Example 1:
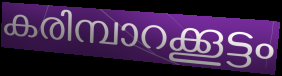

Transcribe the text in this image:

കരിമ്പാറക്കൂട്ടം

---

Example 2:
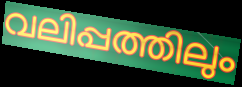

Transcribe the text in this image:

വലിപ്പത്തിലും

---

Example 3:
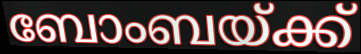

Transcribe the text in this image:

ബോംബയ്ക്ക്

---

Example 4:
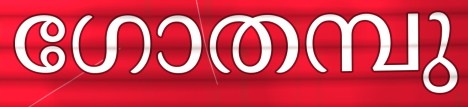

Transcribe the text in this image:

ഗോതമ്പു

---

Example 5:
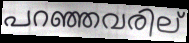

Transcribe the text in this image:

പറഞ്ഞവരില്